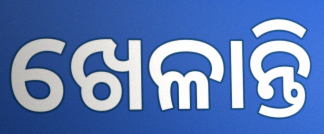
ଖେଳାନ୍ତି